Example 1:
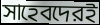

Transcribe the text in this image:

সাহেবদেরই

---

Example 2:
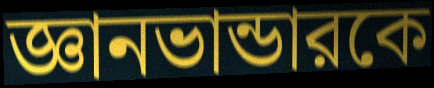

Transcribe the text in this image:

জ্ঞানভান্ডারকে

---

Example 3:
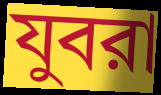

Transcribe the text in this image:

যুবরা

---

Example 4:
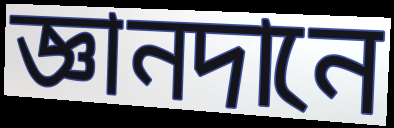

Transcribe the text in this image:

জ্ঞানদানে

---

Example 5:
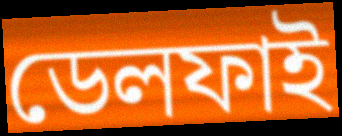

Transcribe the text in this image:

ডেলফাই